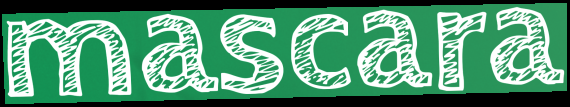
mascara